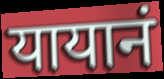
यायानं